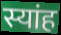
स्यांह